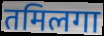
तमिलगा